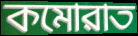
কমোৱাত